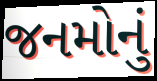
જનમોનું